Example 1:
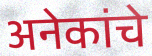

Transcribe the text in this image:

अनेकांचे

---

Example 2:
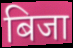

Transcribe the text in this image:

बिजा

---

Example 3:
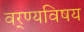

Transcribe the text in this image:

वर्ण्यविषय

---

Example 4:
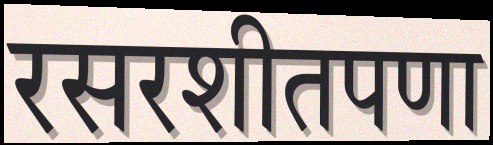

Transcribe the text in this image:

रसरशीतपणा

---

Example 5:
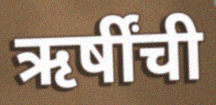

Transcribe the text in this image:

ऋर्षींची